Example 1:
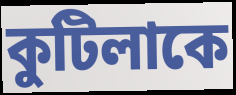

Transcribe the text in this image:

কুটিলাকে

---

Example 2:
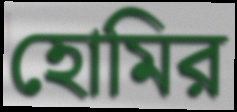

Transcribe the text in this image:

হোমির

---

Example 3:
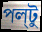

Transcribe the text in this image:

পল্‌টু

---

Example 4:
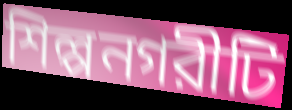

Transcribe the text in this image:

শিল্পনগরীটি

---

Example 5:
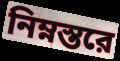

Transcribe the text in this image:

নিম্নস্তরে